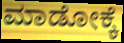
ಮಾಡೋಕ್ಕೆ